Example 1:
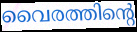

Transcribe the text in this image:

വൈരത്തിന്റെ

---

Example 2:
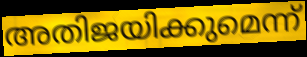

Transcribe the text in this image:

അതിജയിക്കുമെന്ന്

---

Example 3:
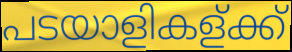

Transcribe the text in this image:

പടയാളികള്ക്ക്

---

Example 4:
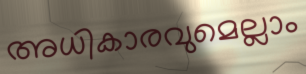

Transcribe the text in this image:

അധികാരവുമെല്ലാം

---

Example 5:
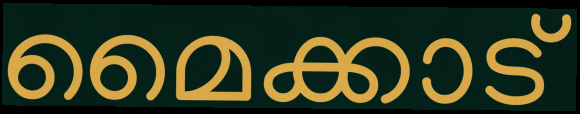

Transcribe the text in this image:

മൈക്കാട്